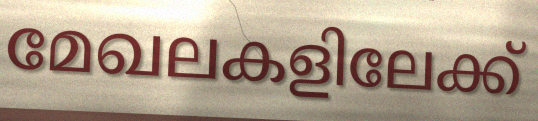
മേഖലകളിലേക്ക്